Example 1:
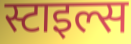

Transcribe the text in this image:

स्टाइल्स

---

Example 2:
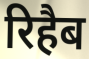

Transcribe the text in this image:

रिहैब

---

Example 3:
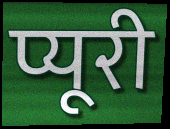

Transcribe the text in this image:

प्यूरी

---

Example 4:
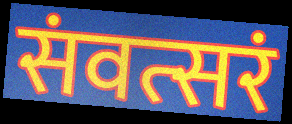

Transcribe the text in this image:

संवत्सरं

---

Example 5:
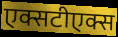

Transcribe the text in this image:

एक्सटीएक्स